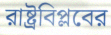
রাষ্ট্রবিপ্লবের